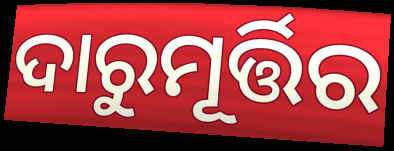
ଦାରୁମୂର୍ତ୍ତିର